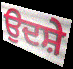
ਉਦਸ਼ੇ